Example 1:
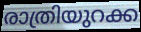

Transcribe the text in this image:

രാത്രിയുറക്ക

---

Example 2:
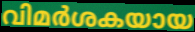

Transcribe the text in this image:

വിമർശകയായ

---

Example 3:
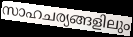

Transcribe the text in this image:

സാഹചര്യങ്ങളിലും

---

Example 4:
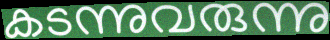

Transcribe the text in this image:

കടന്നുവരുന്നു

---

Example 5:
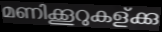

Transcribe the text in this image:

മണിക്കൂറുകള്ക്കു